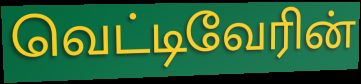
வெட்டிவேரின்